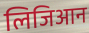
लिजिआन